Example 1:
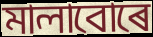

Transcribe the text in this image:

মালাবোৰে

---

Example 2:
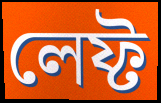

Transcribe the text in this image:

লেফ্ট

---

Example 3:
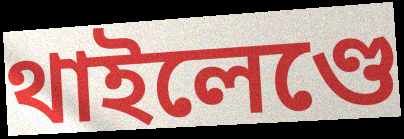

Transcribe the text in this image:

থাইলেণ্ডে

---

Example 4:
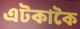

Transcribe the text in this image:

এটকাকৈ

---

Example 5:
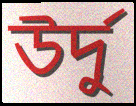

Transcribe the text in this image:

উৰ্দু